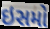
ઇસમો